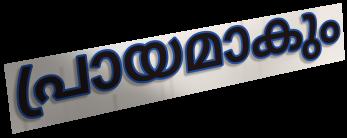
പ്രായമാകും